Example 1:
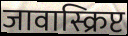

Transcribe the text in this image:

जावास्क्रिप्ट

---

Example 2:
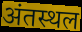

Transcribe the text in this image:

अंतस्थल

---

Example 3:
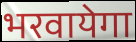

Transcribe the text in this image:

भरवायेगा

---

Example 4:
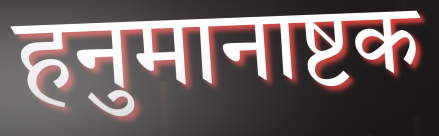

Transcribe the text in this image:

हनुमानाष्टक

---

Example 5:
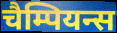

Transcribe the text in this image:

चैम्पियन्स